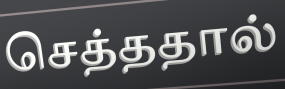
செத்ததால்